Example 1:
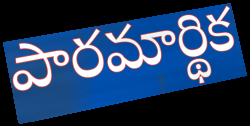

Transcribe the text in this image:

పారమార్థిక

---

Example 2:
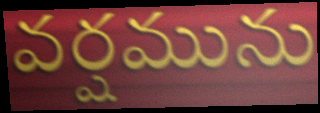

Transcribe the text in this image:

వర్షమును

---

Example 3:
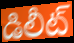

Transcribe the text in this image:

డిలీట్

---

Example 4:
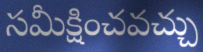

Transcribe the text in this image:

సమీక్షించవచ్చు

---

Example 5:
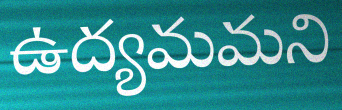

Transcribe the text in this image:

ఉద్యమమని